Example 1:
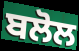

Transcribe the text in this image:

ਬਲੋਲ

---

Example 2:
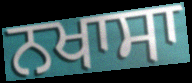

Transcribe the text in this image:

ਨਖਾਸਾ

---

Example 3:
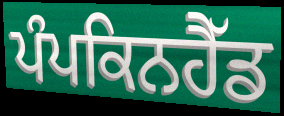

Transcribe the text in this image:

ਪੰਪਕਿਨਹੈੱਡ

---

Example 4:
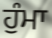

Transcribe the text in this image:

ਹੁੰਮਾ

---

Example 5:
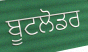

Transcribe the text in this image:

ਬੂਟਲੋਡਰ